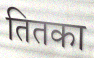
तितका